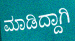
ಮಾಡಿದ್ದಾಗಿ